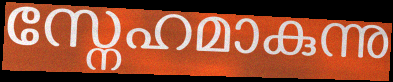
സ്നേഹമാകുന്നു